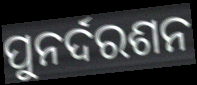
ପୁନର୍ଦରଶନ